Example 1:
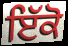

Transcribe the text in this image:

ਇੱਕੋ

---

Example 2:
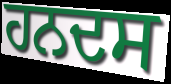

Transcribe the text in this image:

ਹਨਦਸ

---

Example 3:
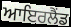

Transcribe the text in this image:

ਆਇਰਲੈਂਡ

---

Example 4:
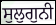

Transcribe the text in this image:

ਸੁਲੁਗੁਨੀ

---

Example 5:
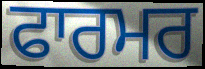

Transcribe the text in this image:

ਫਾਰਮਰ